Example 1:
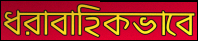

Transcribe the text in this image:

ধরাবাহিকভাবে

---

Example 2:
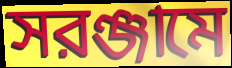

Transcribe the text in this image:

সরঞ্জামে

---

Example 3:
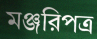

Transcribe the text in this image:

মঞ্জরিপত্র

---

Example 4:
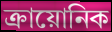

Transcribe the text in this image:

ক্রায়োনিক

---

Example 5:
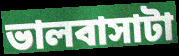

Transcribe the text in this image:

ভালবাসাটা